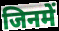
जिनमें